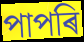
পাপৰি